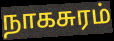
நாகசுரம்